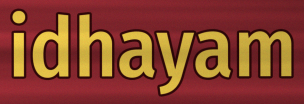
idhayam